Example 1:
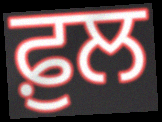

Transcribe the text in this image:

ਫ਼ੁਲ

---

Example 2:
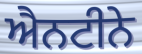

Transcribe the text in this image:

ਐਨਟੀਨੇ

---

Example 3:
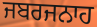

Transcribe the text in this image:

ਜਬਰਜਨਾਹ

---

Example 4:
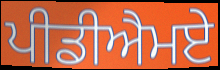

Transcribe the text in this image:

ਪੀਡੀਐਮਏ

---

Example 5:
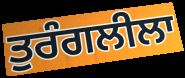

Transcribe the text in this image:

ਤੁਰੰਗਲੀਲਾ